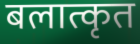
बलात्कृत